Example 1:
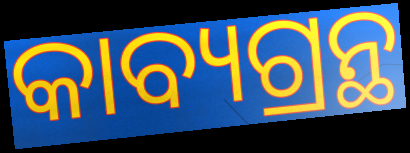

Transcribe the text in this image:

କାବ୍ୟଗ୍ରନ୍ଥ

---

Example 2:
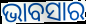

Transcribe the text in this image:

ଭାବସାର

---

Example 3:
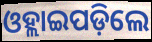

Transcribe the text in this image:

ଓହ୍ଲାଇପଡ଼ିଲେ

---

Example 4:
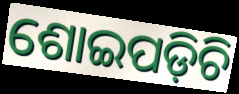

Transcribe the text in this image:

ଶୋଇପଡ଼ିଚି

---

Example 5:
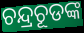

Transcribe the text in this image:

ଚନ୍ଦ୍ରଚୂଡଙ୍କ